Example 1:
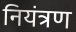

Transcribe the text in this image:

नियंत्रण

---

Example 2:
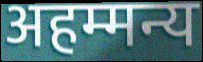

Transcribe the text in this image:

अहम्मन्य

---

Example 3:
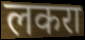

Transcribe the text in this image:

लकरा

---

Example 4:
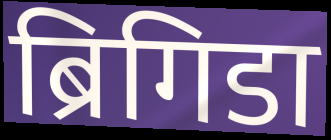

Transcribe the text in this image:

ब्रिगिडा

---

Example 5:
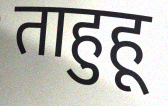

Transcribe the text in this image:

ताहुहू